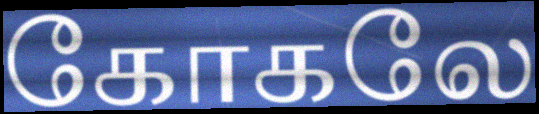
கோகலே